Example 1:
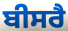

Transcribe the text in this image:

ਬੀਸਰੈ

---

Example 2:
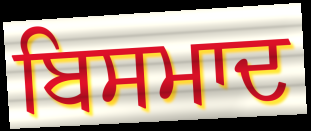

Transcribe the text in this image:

ਬਿਸਮਾਦ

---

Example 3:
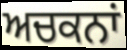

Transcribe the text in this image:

ਅਚਕਨਾਂ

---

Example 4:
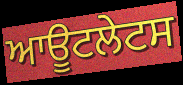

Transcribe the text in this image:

ਆਊਟਲੇਟਸ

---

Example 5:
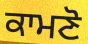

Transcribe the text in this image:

ਕਾਮਣੋ